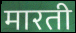
मारती